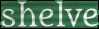
shelve